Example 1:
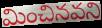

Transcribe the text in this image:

మించినవని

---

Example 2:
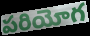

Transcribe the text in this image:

పరియోగ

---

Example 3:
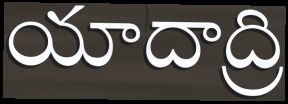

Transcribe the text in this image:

యాదాద్రి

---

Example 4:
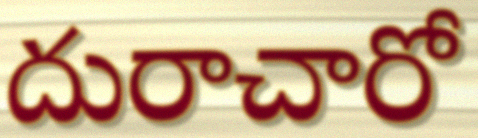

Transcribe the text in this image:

దురాచారో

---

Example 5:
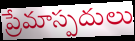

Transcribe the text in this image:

ప్రేమాస్పదులు